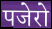
पजेरो